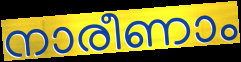
നാരീണാം